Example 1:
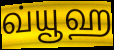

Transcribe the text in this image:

வ்யூஹ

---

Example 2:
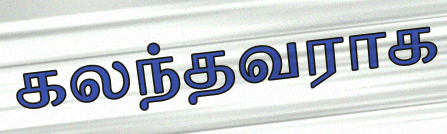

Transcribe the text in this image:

கலந்தவராக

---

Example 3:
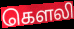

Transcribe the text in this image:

கௌலி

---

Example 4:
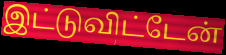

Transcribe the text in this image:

இட்டுவிட்டேன்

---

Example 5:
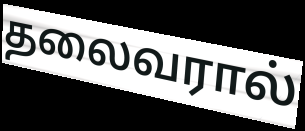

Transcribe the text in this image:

தலைவரால்